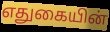
எதுகையின்